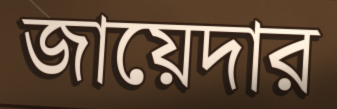
জায়েদার